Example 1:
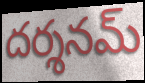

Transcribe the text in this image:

దర్శనమ్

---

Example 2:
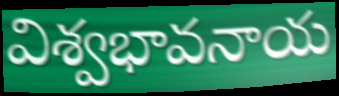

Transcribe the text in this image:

విశ్వభావనాయ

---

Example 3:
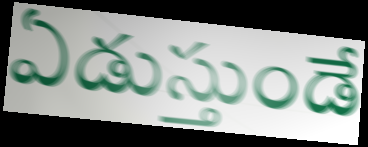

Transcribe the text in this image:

ఏడుస్తుండే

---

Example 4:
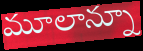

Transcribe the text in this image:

మూలాన్నూ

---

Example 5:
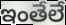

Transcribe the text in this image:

ఇంతేలే